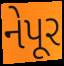
નેપૂર